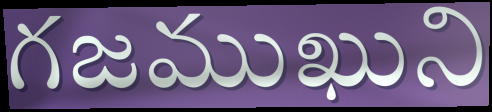
గజముఖుని